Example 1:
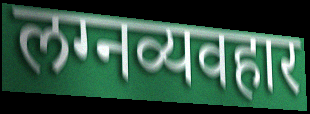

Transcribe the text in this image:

लग्नव्यवहार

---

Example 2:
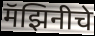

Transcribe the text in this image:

मॅझिनीचे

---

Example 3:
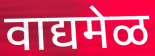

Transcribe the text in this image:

वाद्यमेळ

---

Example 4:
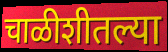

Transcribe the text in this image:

चाळीशीतल्या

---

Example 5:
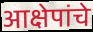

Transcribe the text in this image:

आक्षेपांचे